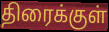
திரைக்குள்